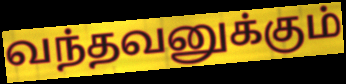
வந்தவனுக்கும்